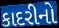
કાદરીનો